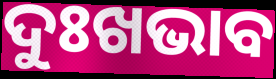
ଦୁଃଖଭାବ